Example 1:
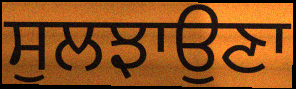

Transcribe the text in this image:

ਸੁਲਝਾਉਣਾ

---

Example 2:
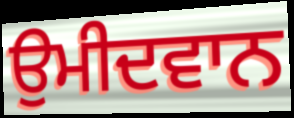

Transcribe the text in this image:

ਉਮੀਦਵਾਨ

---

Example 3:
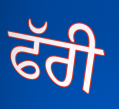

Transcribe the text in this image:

ਫੱਰੀ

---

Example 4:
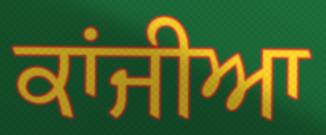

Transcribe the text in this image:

ਕਾਂਜੀਆ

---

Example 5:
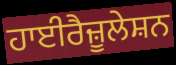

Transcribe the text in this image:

ਹਾਈਰੈਜ਼ੂਲੇਸ਼ਨ